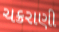
ચક્રરાણી